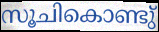
സൂചികൊണ്ടു്